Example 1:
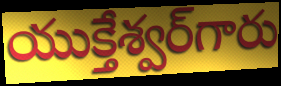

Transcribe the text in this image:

యుక్తేశ్వర్‌గారు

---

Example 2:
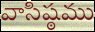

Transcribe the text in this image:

వాసిష్ఠము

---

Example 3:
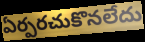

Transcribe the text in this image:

ఏర్పరచుకొనలేదు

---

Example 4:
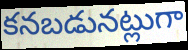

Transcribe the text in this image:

కనబడునట్లుగా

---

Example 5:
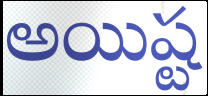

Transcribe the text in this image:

అయిష్ట